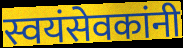
स्वयंसेवकांनी